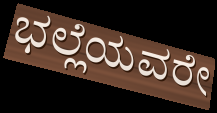
ಭಲ್ಲೆಯವರೇ